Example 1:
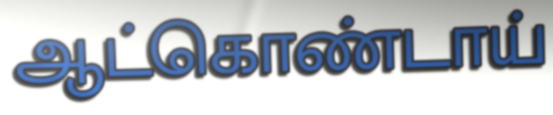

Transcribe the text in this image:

ஆட்கொண்டாய்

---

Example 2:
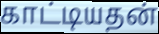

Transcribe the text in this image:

காட்டியதன்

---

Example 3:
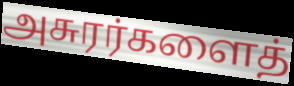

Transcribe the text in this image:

அசுரர்களைத்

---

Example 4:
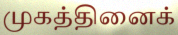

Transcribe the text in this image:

முகத்தினைக்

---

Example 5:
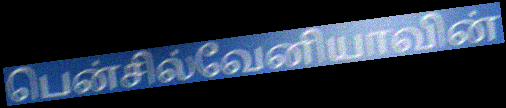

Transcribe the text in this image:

பென்சில்வேனியாவின்